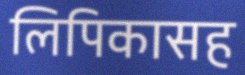
लिपिकासह